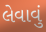
લેવાવું